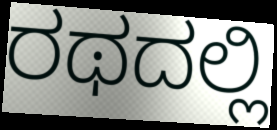
ರಥದಲ್ಲಿ